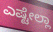
ಎಷ್ಟೇಲ್ಲಾ